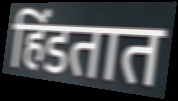
हिंडतात